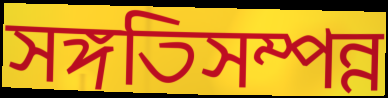
সঙ্গতিসম্পন্ন